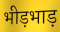
भीड़भाड़